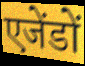
एजेंडों